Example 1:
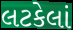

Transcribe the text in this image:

લટકેલાં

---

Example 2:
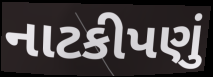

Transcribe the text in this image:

નાટકીપણું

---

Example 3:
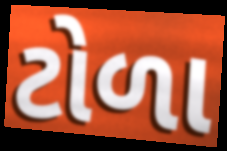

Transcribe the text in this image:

ટોળા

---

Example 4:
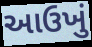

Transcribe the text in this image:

આઉખું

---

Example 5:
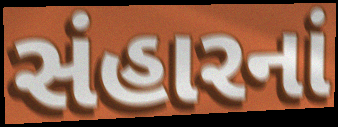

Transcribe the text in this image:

સંહારનાં